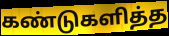
கண்டுகளித்த